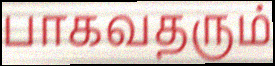
பாகவதரும்